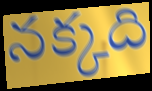
నక్కది